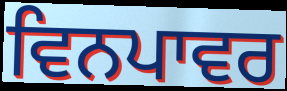
ਵਿਨਪਾਵਰ